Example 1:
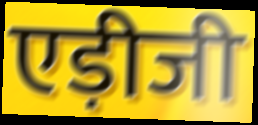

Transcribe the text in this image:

एड़ीजी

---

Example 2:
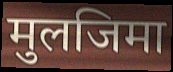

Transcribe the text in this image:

मुलजिमा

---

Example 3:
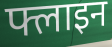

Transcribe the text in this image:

फ्लाइन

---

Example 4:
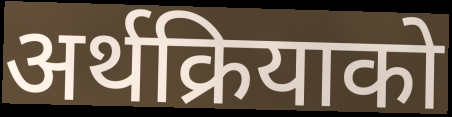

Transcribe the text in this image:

अर्थक्रियाको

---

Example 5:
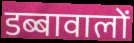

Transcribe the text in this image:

डब्बावालों